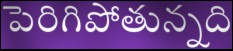
పెరిగిపోతున్నది